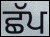
ਛੱਪ